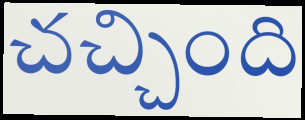
చచ్చింది